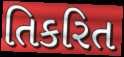
તિકરિત